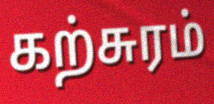
கற்சுரம்